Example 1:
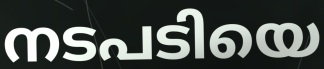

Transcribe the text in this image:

നടപടിയെ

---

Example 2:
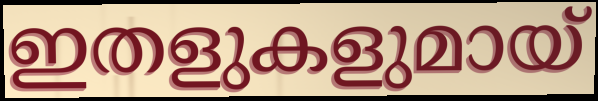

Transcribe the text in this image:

ഇതളുകളുമായ്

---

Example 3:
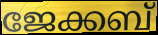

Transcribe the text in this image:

ജേക്കബ്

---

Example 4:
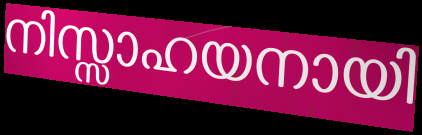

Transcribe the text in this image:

നിസ്സാഹയനായി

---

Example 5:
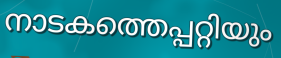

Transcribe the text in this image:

നാടകത്തെപ്പറ്റിയും